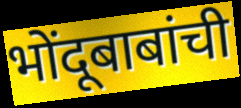
भोंदूबाबांची